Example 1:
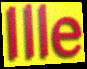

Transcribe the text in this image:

Ille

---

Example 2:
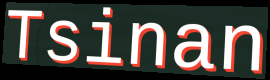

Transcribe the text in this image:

Tsinan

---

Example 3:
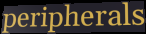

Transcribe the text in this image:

peripherals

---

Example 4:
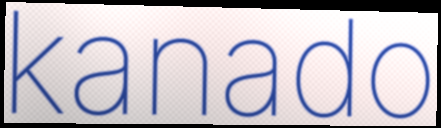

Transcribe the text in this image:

kanado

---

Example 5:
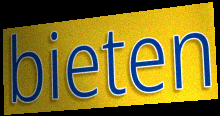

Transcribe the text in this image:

bieten